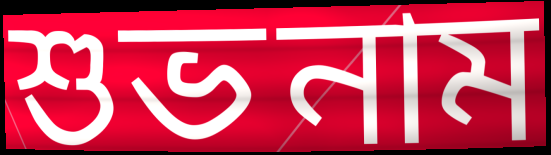
শুভনাম